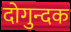
दोगुन्दक